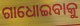
ଗାଧୋଇବାକୁ